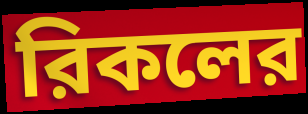
রিকলের